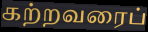
கற்றவரைப்